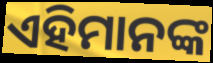
ଏହିମାନଙ୍କ